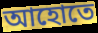
আহোতে